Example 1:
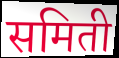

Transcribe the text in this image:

समिती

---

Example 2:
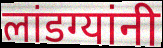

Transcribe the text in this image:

लांडग्यांनी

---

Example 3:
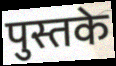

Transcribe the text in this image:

पुस्‍तके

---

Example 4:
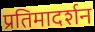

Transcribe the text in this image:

प्रतिमादर्शन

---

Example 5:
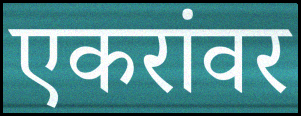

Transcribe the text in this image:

एकरांवर